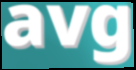
avg